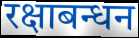
रक्षाबन्धन